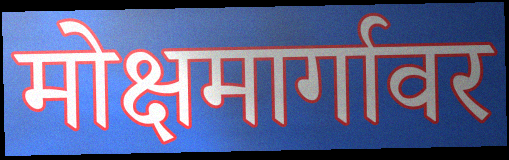
मोक्षमार्गावर